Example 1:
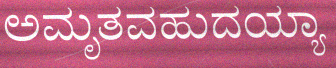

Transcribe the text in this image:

ಅಮೃತವಹುದಯ್ಯಾ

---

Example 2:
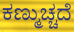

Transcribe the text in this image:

ಕಣ್ಮುಚ್ಚದೆ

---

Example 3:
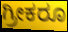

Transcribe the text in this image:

ಗ್ರೀಕರೂ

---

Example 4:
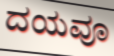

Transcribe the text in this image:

ದಯವೂ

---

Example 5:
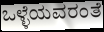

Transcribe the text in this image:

ಒಳ್ಳೆಯವರಂತೆ